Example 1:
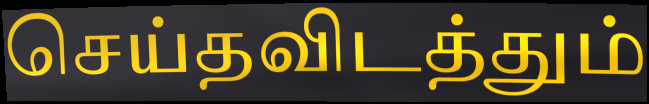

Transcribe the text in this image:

செய்தவிடத்தும்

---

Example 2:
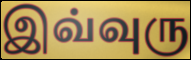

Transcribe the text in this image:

இவ்வுரு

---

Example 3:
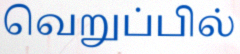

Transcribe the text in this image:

வெறுப்பில்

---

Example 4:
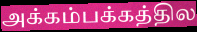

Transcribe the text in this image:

அக்கம்பக்கத்தில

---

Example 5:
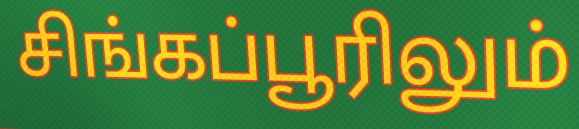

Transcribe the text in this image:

சிங்கப்பூரிலும்